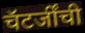
चॅटर्जींची